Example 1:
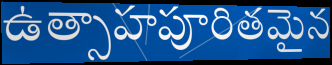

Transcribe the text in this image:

ఉత్సాహపూరితమైన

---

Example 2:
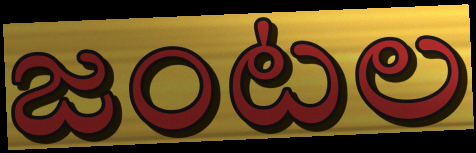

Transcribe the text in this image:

జంటల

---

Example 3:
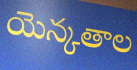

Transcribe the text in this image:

యెన్కతాల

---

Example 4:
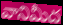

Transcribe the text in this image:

వానిమీద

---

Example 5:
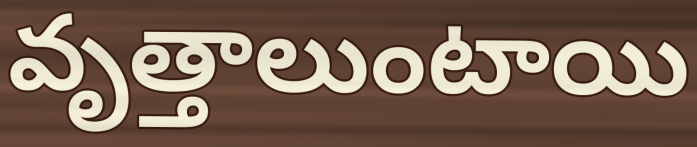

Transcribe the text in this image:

వృత్తాలుంటాయి